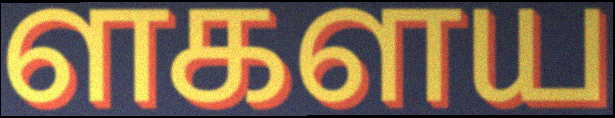
ளகளய